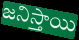
జనిస్తాయి